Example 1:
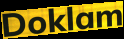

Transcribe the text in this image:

Doklam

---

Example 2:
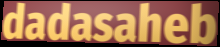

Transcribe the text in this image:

dadasaheb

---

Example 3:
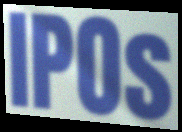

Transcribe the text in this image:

IPOs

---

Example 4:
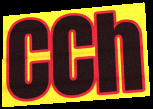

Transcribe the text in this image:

CCh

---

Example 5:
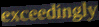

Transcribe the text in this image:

exceedingly